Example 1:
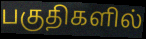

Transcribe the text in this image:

பகுதிகளில்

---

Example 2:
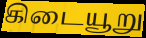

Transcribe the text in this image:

கிடையூறு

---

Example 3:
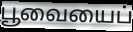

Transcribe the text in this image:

பூவையைப்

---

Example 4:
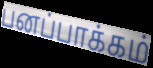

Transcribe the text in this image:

பனப்பாக்கம்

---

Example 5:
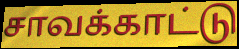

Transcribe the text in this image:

சாவக்காட்டு